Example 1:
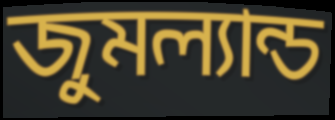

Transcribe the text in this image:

জুমল্যান্ড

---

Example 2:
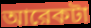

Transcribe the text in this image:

আরেকটা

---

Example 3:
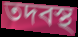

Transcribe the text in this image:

তদবস্থ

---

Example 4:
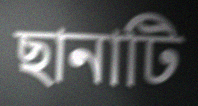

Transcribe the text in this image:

ছানাটি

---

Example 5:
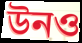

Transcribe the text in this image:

উনও